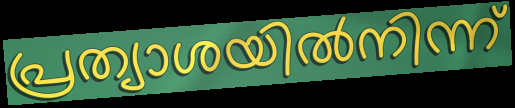
പ്രത്യാശയിൽനിന്ന്